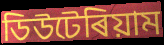
ডিউটেৰিয়াম